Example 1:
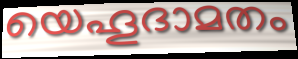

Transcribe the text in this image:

യെഹൂദാമതം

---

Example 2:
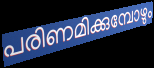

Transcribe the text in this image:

പരിണമിക്കുമ്പോഴും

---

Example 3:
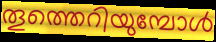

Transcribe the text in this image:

തൂത്തെറിയുമ്പോൾ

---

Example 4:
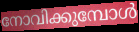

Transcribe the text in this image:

നോവിക്കുമ്പോൾ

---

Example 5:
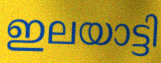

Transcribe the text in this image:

ഇലയാട്ടി